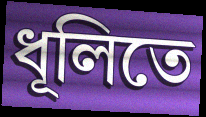
ধূলিতে